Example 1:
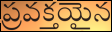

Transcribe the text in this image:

ప్రవక్తయైన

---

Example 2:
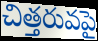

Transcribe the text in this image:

చిత్తరువపై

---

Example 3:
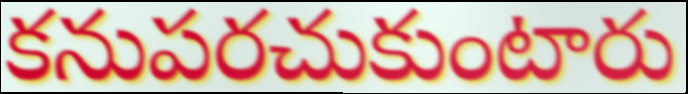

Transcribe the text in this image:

కనుపరచుకుంటారు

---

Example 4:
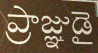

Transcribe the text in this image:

ప్రాజ్ఞుడై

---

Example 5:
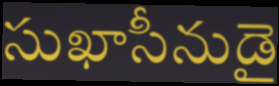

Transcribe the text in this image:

సుఖాసీనుడై